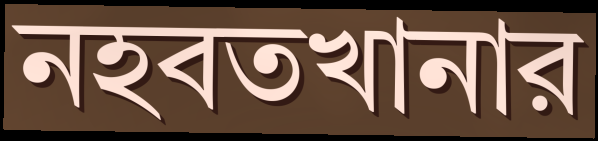
নহবতখানার